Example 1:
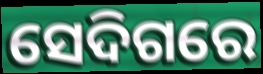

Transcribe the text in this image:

ସେଦିଗରେ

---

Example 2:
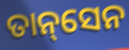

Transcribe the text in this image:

ତାନ୍‌ସେନ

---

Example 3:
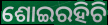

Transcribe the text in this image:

ଶୋଇରହିଚି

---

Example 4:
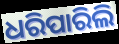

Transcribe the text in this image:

ଧରିପାରିଲି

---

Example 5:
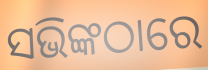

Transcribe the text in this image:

ସଭିଙ୍କଠାରେ